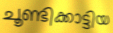
ചൂണ്ടിക്കാട്ടിയ